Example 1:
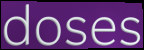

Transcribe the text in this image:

doses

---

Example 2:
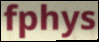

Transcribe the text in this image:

fphys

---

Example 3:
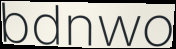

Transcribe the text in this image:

bdnwo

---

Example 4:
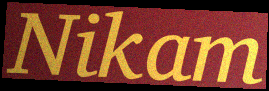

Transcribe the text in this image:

Nikam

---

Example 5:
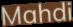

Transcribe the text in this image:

Mahdi